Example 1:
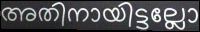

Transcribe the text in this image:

അതിനായിട്ടല്ലോ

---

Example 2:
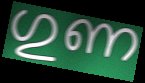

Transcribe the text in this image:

ഗുണ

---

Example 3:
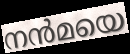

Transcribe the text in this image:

നൻമയെ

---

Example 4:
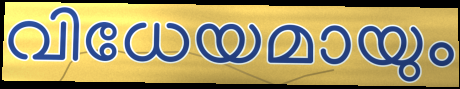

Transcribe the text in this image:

വിധേയമായും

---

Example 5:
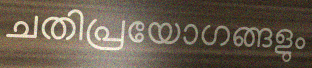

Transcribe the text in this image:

ചതിപ്രയോഗങ്ങളും